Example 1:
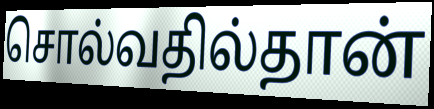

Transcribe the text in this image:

சொல்வதில்தான்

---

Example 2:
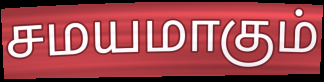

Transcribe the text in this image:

சமயமாகும்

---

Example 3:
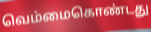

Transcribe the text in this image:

வெம்மைகொண்டது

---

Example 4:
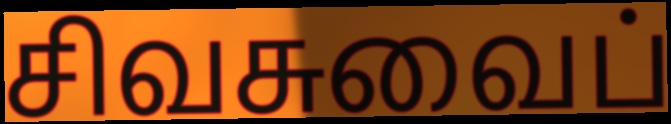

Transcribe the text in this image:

சிவசுவைப்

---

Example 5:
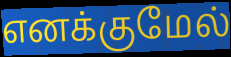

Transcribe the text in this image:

எனக்குமேல்